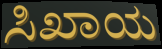
ಸಿಖಾಯ